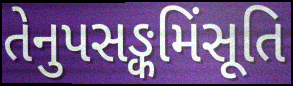
તેનુપસઙ્કમિંસૂતિ